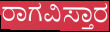
ರಾಗವಿಸ್ತಾರ